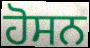
ਹੋਸਨ